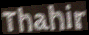
Thahir